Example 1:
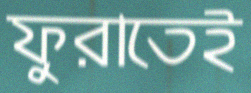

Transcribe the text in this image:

ফুরাতেই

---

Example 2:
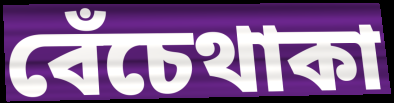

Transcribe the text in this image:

বেঁচেথাকা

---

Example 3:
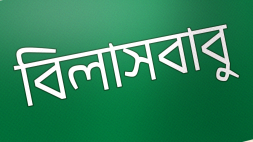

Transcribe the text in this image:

বিলাসবাবু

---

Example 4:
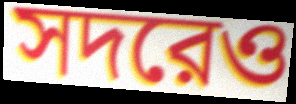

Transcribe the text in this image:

সদরেও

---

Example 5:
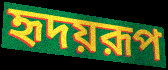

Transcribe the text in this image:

হৃদয়রূপ